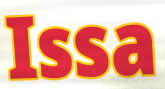
Issa